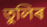
তুলিৰ